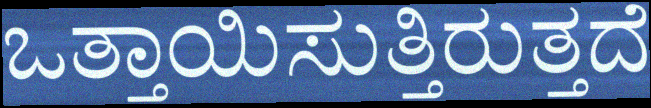
ಒತ್ತಾಯಿಸುತ್ತಿರುತ್ತದೆ